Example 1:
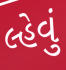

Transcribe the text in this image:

લ્હેવું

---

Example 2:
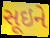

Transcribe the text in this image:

સૂઇને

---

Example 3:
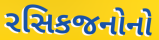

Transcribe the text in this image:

રસિકજનોનો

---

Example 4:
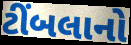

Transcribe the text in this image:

ટીંબલાનો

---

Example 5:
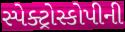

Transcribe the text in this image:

સ્પેક્ટ્રોસ્કોપીની